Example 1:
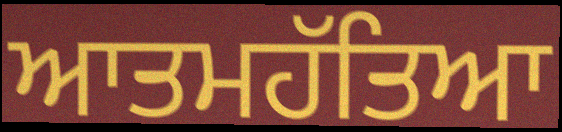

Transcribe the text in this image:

ਆਤਮਹੱਤਿਆ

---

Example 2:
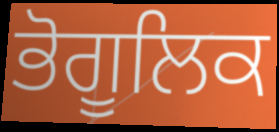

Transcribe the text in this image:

ਭੋਗੂਲਿਕ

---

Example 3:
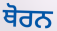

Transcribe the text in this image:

ਥੋਰਨ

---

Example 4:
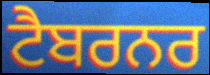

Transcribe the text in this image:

ਟੈਬਰਨਰ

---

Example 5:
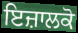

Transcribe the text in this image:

ਇਜ਼ਾਲਕੋ